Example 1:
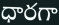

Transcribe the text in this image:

ధారగా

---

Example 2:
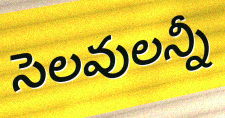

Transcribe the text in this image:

సెలవులన్నీ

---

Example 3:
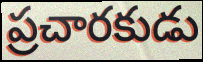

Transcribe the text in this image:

ప్రచారకుడు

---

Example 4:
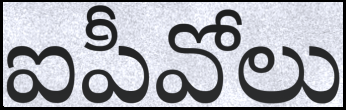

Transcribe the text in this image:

ఐపీవోలు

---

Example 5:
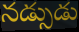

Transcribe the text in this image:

నడ్సుడు